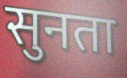
सुनता